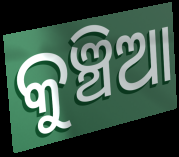
କୁଞ୍ଚିଆ